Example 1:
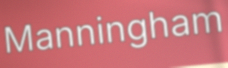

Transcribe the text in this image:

Manningham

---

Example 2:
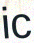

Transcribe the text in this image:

ic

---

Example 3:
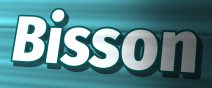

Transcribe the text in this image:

Bisson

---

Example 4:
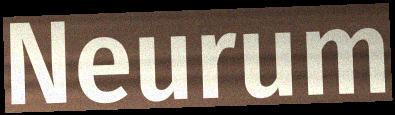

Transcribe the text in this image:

Neurum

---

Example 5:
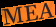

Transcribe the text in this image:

MEA